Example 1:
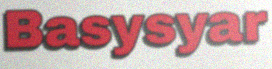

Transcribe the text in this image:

Basysyar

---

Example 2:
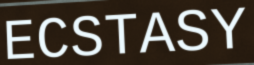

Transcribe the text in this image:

ECSTASY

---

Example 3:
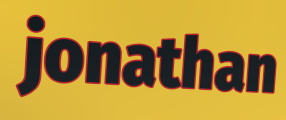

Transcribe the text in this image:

jonathan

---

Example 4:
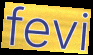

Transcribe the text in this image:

fevi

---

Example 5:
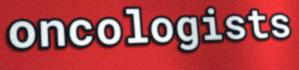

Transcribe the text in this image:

oncologists